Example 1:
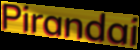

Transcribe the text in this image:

Pirandai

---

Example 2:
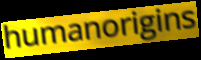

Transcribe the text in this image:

humanorigins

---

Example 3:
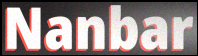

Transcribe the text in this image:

Nanbar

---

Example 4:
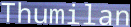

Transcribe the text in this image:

Thumilan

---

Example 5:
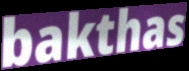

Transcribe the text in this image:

bakthas